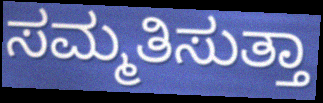
ಸಮ್ಮತಿಸುತ್ತಾ